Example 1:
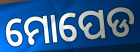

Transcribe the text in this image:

ମୋପେଡ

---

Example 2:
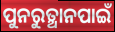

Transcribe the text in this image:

ପୁନରୁତ୍ଥାନପାଇଁ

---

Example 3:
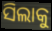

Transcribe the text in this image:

ସିଲାକୁ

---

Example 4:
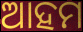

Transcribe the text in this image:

ଆହମ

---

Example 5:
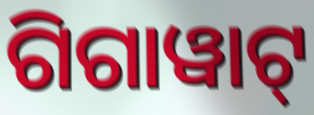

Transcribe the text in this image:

ଗିଗାୱାଟ୍